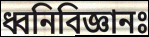
ধ্বনিবিজ্ঞানঃ